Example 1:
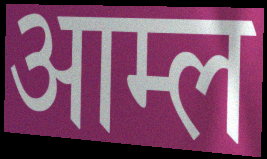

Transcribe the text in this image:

आम्‍ल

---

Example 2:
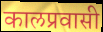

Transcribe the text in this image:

कालप्रवासी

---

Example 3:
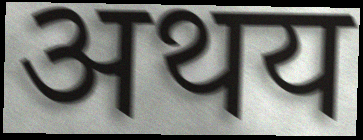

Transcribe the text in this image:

अथय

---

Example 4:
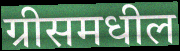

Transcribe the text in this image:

ग्रीसमधील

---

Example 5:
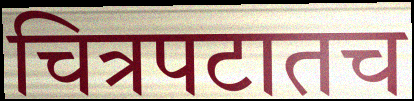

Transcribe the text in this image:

चित्रपटातच